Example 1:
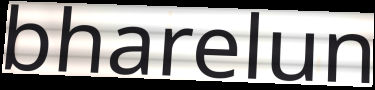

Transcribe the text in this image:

bharelun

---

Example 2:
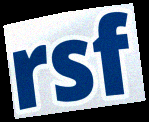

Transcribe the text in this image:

rsf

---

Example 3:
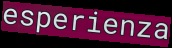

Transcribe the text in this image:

esperienza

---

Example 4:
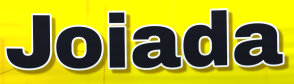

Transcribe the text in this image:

Joiada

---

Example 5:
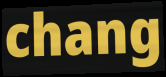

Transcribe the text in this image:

chang